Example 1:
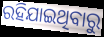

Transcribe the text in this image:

ରହିଯାଇଥିବାରୁ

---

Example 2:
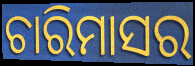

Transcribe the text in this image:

ଚାରିମାସର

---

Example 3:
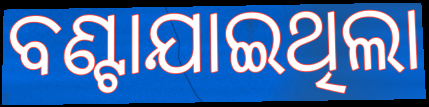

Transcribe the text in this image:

ବଣ୍ଟାଯାଇଥିଲା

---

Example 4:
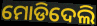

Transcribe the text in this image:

ମୋଡିଦେଲି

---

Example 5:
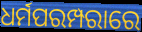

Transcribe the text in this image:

ଧର୍ମପରମ୍ପରାରେ